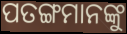
ପତଙ୍ଗମାନଙ୍କୁ